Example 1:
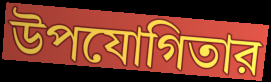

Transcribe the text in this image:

উপযোগিতার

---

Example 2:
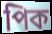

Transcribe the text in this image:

পিক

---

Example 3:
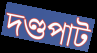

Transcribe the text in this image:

দণ্ডপাট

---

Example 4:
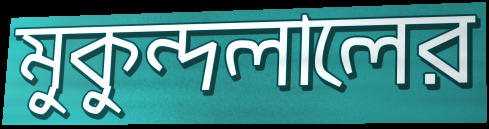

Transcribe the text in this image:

মুকুন্দলালের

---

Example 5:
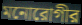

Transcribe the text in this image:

মনোরোগীর